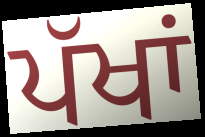
ਪੱਖਾਂ